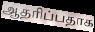
ஆதரிப்பதாக